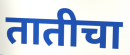
तातीचा